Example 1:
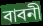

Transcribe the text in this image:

বাবনী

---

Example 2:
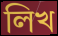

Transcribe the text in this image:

লিখ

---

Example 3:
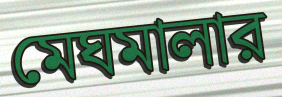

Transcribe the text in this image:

মেঘমালার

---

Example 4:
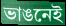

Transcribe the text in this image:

ভাঙনেই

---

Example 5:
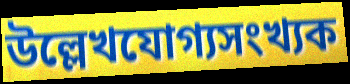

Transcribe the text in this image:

উল্লেখযোগ্যসংখ্যক